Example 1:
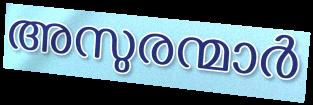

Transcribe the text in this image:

അസുരന്മാർ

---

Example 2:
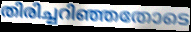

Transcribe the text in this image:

തിരിച്ചറിഞ്ഞതോടെ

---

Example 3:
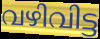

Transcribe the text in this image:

വഴിവിട്ട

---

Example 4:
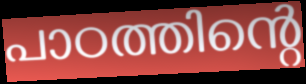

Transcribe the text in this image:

പാഠത്തിന്റെ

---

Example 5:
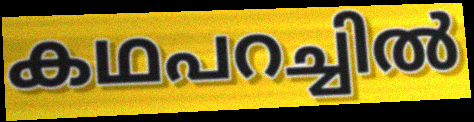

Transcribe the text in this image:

കഥപറച്ചിൽ